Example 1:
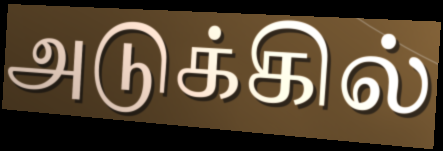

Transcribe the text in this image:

அடுக்கில்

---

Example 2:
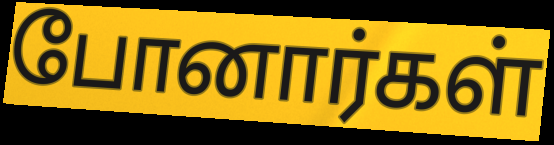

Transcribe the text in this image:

போனார்கள்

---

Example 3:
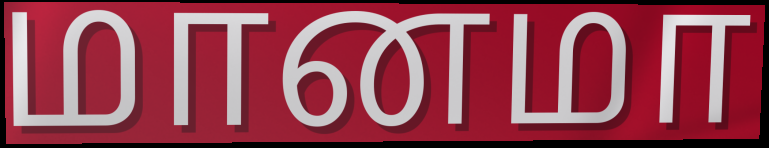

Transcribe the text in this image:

மானமா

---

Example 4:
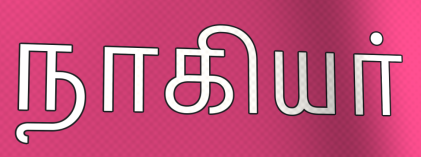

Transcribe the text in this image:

நாகியர்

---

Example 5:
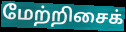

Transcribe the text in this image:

மேற்றிசைக்